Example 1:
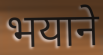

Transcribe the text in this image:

भयाने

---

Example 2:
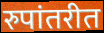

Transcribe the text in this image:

रुपांतरीत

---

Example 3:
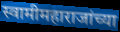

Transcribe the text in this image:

स्वामीमहाराजांच्या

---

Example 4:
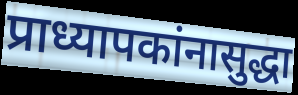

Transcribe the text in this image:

प्राध्यापकांनासुद्धा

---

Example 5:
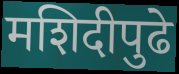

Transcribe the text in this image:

मशिदीपुढे